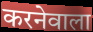
करनेवाला